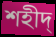
শহীদ্